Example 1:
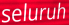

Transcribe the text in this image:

seluruh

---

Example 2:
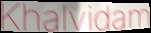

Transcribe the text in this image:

Khalvidam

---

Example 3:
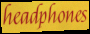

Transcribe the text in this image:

headphones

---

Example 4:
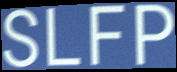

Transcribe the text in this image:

SLFP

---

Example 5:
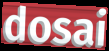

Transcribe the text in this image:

dosai